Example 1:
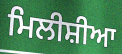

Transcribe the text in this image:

ਮਿਲੀਸ਼ੀਆ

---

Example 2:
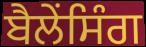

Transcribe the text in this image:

ਬੈਲੇਂਸਿੰਗ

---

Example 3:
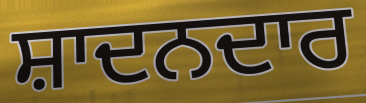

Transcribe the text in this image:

ਸ਼ਾਦਨਦਾਰ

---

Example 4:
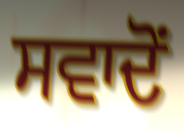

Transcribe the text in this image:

ਸਵਾਦੋਂ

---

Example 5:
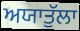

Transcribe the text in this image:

ਅਯਾਤੁੱਲਾ